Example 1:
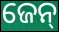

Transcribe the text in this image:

ଜେନ୍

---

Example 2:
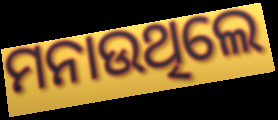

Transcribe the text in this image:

ମନାଉଥିଲେ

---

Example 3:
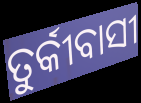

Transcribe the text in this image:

ତୁର୍କୀବାସୀ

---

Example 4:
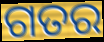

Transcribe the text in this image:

ଗତର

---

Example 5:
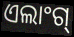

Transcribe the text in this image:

ଏଲାଂଗ୍